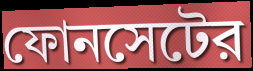
ফোনসেটের